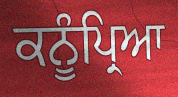
ਕਨੂੰਪ੍ਰਿਆ